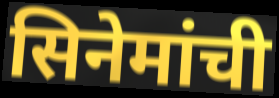
सिनेमांची